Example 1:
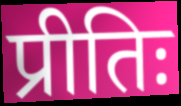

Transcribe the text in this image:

प्रीतिः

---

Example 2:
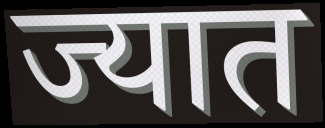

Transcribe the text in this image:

ज्यात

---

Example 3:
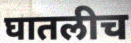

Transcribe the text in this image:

घातलीच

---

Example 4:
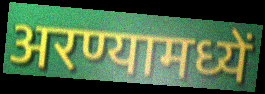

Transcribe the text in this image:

अरण्यामध्यें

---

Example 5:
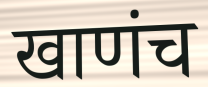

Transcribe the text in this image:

खाणंच